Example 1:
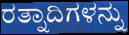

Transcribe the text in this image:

ರತ್ನಾದಿಗಳನ್ನು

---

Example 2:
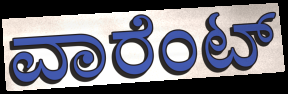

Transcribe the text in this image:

ವಾರೆಂಟ್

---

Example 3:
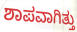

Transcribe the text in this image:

ಶಾಪವಾಗಿತ್ತು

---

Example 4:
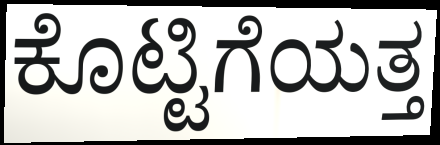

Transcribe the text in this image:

ಕೊಟ್ಟಿಗೆಯತ್ತ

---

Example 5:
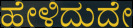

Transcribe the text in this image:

ಹೇಳಿದುದೇ